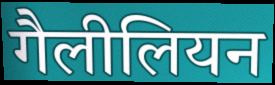
गैलीलियन